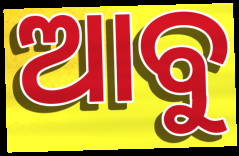
ଆବୁ